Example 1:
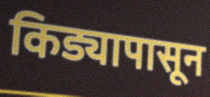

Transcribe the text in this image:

किड्यापासून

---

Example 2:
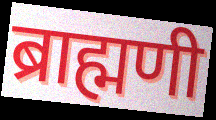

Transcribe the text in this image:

ब्राह्मणी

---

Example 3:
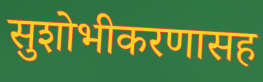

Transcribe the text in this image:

सुशोभीकरणासह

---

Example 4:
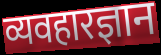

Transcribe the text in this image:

व्यवहारज्ञान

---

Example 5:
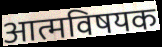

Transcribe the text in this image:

आत्मविषयक